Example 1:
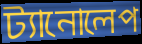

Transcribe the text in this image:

ট্যানোলেপ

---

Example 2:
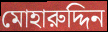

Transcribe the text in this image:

মোহারুদ্দিন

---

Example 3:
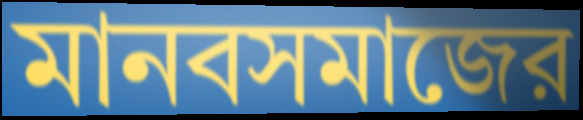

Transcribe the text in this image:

মানবসমাজের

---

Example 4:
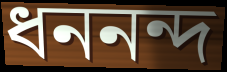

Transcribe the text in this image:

ধননন্দ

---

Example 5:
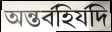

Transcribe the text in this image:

অন্তর্বহির্যদি